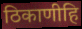
ठिकाणीहि